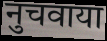
नुचवाया